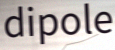
dipole